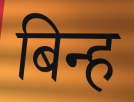
बिन्ह